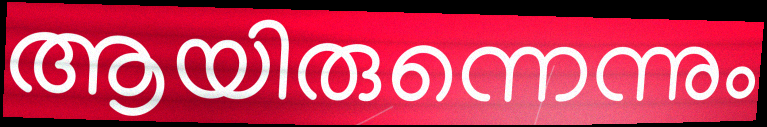
ആയിരുന്നെന്നും